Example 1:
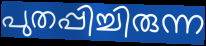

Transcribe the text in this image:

പുതപ്പിച്ചിരുന്ന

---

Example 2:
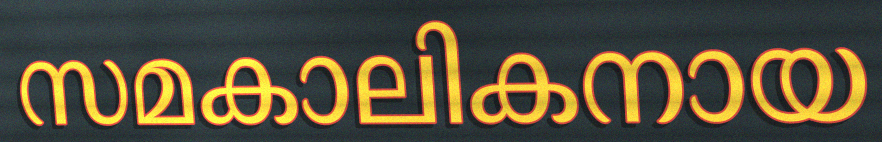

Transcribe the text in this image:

സമകാലികനായ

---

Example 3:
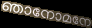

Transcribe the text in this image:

ഞാനോമനേ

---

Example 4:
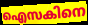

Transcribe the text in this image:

ഐസകിനെ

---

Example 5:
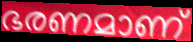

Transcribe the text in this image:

ഭരണമാണ്